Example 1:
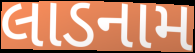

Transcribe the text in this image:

લાડનામ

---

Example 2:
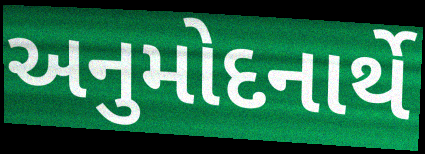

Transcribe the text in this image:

અનુમોદનાર્થે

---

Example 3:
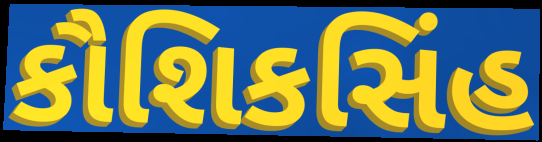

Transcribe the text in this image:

કૌશિકસિંહ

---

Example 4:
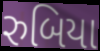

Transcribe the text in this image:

રુબિયા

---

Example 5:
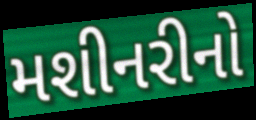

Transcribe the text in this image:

મશીનરીનો